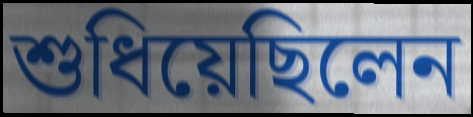
শুধিয়েছিলেন